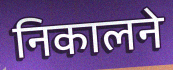
निकालने